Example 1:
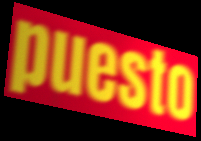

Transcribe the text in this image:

puesto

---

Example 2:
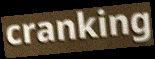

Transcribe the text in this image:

cranking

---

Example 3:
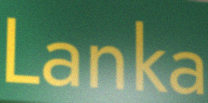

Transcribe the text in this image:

Lanka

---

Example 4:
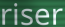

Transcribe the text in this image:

riser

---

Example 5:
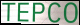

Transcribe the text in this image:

TEPCO